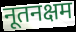
नूतनक्षम